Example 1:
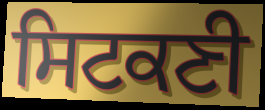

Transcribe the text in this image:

ਸਿਟਕਣੀ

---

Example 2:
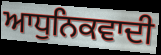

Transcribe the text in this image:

ਆਧੁਨਿਕਵਾਦੀ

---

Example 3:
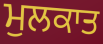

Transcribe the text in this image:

ਮੁਲਕਾਤ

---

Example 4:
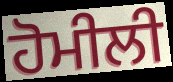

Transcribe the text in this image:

ਹੋਮੀਲੀ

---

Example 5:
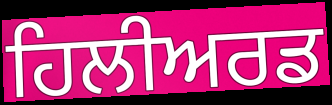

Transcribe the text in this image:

ਹਿਲੀਅਰਡ